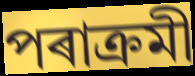
পৰাক্ৰমী